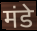
मंडे